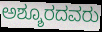
ಅಶ್ಶೂರದವರು